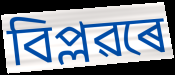
বিপ্লৱৰে